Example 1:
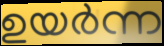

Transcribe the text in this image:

ഉയർന്ന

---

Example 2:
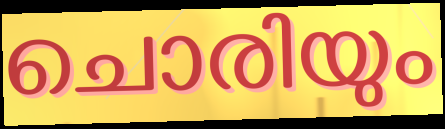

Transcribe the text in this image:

ചൊരിയും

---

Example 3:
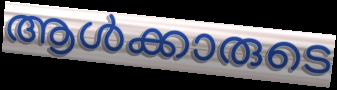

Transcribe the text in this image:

ആൾക്കാരുടെ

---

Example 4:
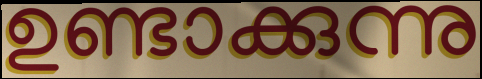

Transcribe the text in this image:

ഉണ്ടാക്കുന്നു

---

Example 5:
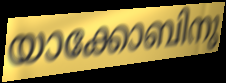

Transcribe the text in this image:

യാക്കോബിനു